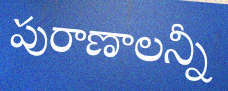
పురాణాలన్నీ